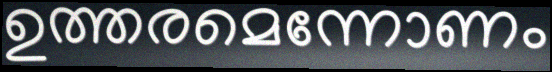
ഉത്തരമെന്നോണം